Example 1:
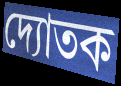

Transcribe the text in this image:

দ্যোতক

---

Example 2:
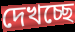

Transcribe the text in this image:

দেখচ্ছে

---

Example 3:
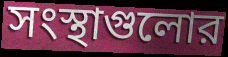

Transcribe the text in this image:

সংস্থাগুলোর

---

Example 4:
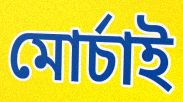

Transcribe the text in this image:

মোর্চাই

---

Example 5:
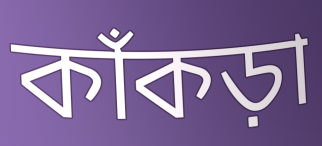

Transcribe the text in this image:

কাঁকড়া